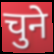
चुने